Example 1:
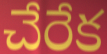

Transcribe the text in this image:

చేరేక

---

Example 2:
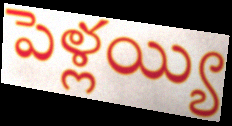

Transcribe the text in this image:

పెళ్లయ్యి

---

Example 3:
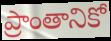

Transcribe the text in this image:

ప్రాంతానికో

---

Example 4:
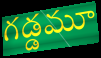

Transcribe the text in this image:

గడ్డమూ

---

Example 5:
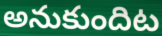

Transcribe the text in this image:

అనుకుందిట